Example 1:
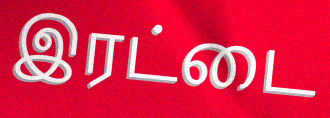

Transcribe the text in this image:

இரட்டை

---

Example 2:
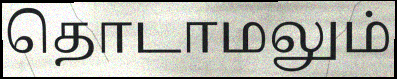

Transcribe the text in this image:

தொடாமலும்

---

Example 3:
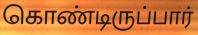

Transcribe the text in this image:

கொண்டிருப்பார்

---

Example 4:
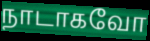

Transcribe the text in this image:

நாடாகவோ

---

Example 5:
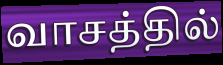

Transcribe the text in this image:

வாசத்தில்